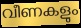
വീണകളും